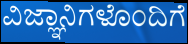
ವಿಜ್ಞಾನಿಗಳೊಂದಿಗೆ